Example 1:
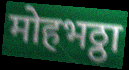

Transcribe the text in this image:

मोहभठ्ठा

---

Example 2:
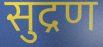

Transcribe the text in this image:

सुद्रण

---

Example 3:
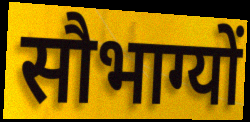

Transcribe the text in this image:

सौभाग्यों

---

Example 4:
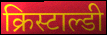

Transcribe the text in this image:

क्रिस्टाल्डी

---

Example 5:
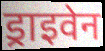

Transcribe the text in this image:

ड्राइवेन